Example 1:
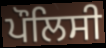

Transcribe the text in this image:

ਪੌਲਿਸੀ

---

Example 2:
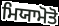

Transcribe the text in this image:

ਮਿਯਾਮੋਤੋ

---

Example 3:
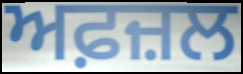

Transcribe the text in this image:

ਅਫ਼ਜ਼ਲ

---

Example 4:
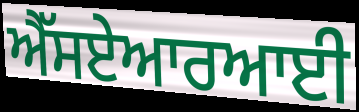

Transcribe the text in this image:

ਐੱਸਏਆਰਆਈ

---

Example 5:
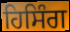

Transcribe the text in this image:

ਹਿਸਿੰਗ